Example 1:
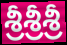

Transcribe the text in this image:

శ్రీశ్రీశ్రీ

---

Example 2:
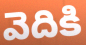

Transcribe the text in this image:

వెదికి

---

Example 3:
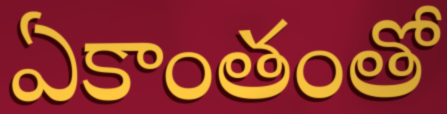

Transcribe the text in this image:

ఏకాంతంతో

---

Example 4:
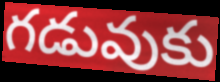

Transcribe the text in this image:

గడువుకు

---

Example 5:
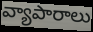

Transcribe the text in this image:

వ్యాపారాలు